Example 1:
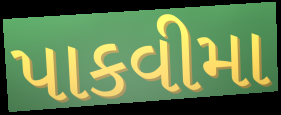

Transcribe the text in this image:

પાકવીમા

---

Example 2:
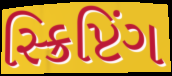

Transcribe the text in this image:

સ્ક્રિપ્ટિંગ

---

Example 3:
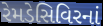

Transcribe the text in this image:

રેમડેસિવિરનાં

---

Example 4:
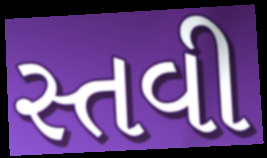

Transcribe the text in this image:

સ્તવી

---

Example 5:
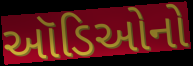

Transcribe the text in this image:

ઑડિઓનો